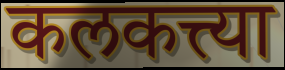
कलकत्त्या